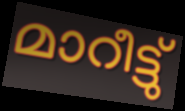
മാറീട്ടു്